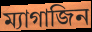
ম্যাগাজিন